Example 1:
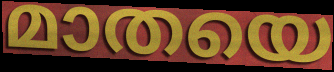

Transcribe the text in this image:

മാതയെ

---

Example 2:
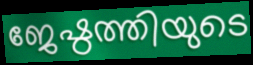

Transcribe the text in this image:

ജേഷ്ഠത്തിയുടെ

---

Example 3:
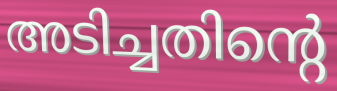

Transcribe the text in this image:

അടിച്ചതിന്റെ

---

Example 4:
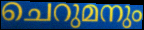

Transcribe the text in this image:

ചെറുമനും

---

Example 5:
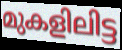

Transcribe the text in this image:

മുകളിലിട്ട